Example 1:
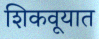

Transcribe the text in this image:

शिकवूयात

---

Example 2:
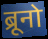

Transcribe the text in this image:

ब्रूनो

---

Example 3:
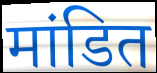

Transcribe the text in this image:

मांडित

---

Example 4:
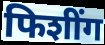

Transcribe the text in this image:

फिशींग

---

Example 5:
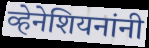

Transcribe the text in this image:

व्हेनेशियनांनी